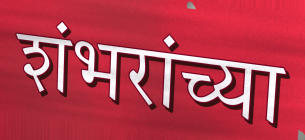
शंभरांच्या